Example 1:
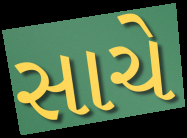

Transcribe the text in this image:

સાચે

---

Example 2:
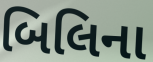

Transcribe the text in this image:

બિલિના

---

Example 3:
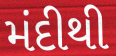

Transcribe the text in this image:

મંદીથી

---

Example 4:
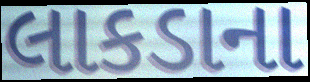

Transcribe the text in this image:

લાકડાના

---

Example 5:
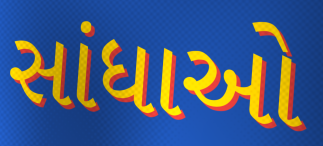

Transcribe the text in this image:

સાંધાઓ